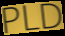
PLD